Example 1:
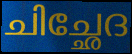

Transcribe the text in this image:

ചിച്ഛേദ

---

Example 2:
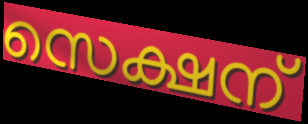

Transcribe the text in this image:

സെക്ഷന്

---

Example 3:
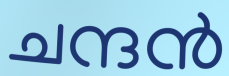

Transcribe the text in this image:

ചന്ദൻ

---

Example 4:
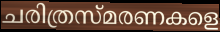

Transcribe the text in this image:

ചരിത്രസ്മരണകളെ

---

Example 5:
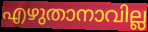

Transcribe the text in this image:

എഴുതാനാവില്ല